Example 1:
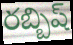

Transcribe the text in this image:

రబ్బిష్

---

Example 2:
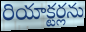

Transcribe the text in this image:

రియాక్టర్లను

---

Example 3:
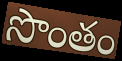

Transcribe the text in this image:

సొంతం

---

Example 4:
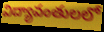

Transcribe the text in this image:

విద్యావంతులలో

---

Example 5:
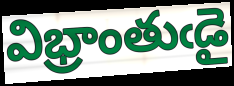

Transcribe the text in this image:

విభ్రాంతుఁడై